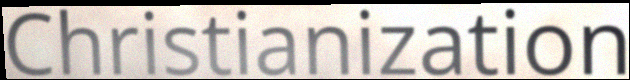
Christianization